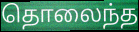
தொலைந்த